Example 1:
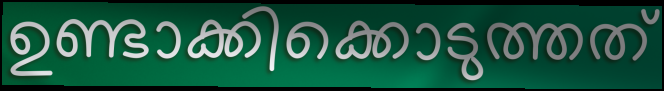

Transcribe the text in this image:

ഉണ്ടാക്കിക്കൊടുത്തത്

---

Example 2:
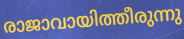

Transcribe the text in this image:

രാജാവായിത്തീരുന്നു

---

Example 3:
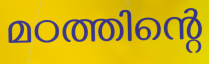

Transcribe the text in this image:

മഠത്തിന്റെ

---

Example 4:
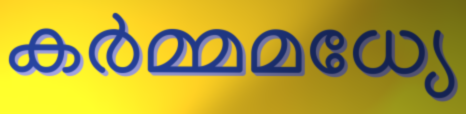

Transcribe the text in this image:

കർമ്മമധ്യേ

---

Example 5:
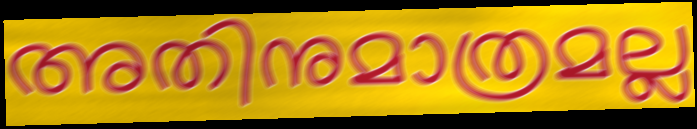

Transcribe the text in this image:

അതിനുമാത്രമല്ല